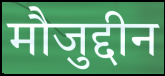
मौजुद्दीन